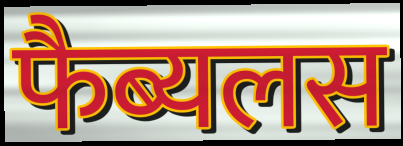
फैब्यलस